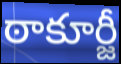
ఠాకూర్జీ